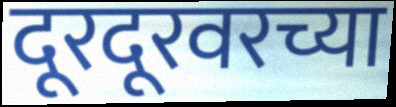
दूरदूरवरच्या